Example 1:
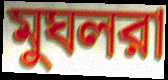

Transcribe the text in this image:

মুঘলরা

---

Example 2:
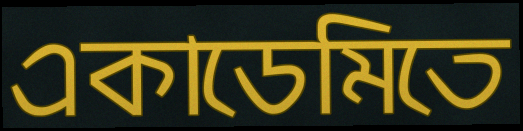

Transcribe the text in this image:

একাডেমিতে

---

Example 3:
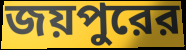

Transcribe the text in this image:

জয়পুরের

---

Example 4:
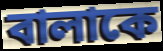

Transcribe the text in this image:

বালাকে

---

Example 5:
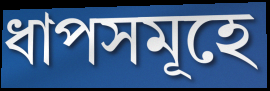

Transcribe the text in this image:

ধাপসমূহে